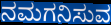
ನಮಗನಿಸುವ